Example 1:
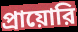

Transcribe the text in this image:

প্রায়োরি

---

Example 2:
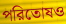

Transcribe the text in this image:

পরিতোষও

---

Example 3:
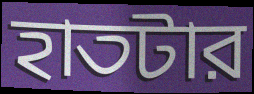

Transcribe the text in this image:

হাতটার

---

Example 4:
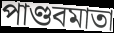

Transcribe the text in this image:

পাণ্ডবমাতা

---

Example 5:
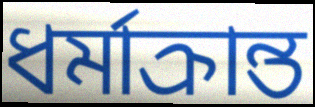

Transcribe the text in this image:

ধর্মাক্রান্ত